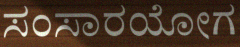
ಸಂಸಾರಯೋಗ